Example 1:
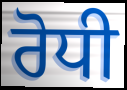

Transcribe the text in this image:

ਰੋਧੀ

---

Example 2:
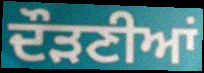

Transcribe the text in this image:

ਦੌੜਣੀਆਂ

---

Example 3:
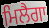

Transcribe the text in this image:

ਮਿਲੈਗਾ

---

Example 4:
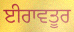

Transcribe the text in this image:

ਈਰਾਵਤੂਰ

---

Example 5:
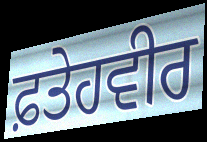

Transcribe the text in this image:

ਫ਼ਤੇਹਵੀਰ